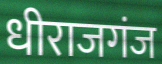
धीराजगंज